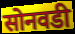
सोनवडी